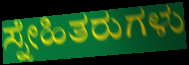
ಸ್ನೇಹಿತರುಗಳು